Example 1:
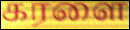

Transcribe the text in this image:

கரளை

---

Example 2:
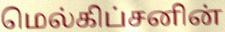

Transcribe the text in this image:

மெல்கிப்சனின்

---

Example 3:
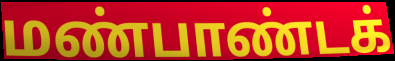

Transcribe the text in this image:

மண்பாண்டக்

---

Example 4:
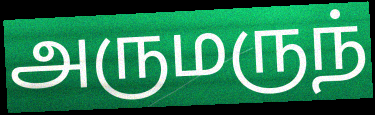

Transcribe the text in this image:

அருமருந்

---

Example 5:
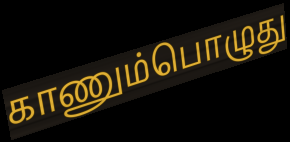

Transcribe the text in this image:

காணும்பொழுது